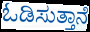
ಓಡಿಸುತ್ತಾನೆ